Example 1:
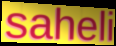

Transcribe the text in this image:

saheli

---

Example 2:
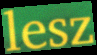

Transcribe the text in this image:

lesz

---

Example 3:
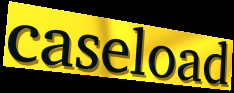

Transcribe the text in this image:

caseload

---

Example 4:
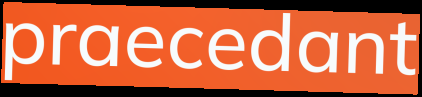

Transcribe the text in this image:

praecedant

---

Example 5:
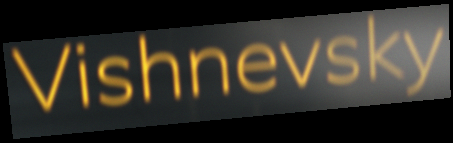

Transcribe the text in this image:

Vishnevsky